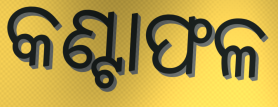
କଣ୍ଟାଫଳ